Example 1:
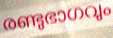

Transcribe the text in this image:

രണ്ടുഭാഗവും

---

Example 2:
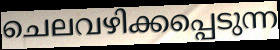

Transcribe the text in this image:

ചെലവഴിക്കപ്പെടുന്ന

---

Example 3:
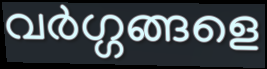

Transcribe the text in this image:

വർഗ്ഗങ്ങളെ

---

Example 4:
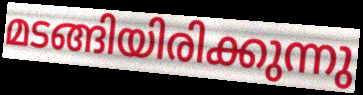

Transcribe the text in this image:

മടങ്ങിയിരിക്കുന്നു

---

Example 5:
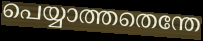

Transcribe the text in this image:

പെയ്യാത്തതെന്തേ